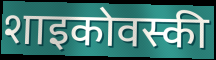
शाइकोवस्की